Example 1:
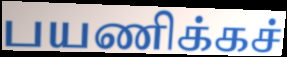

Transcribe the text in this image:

பயணிக்கச்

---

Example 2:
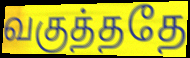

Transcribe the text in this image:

வகுத்ததே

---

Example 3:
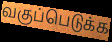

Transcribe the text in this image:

வகுப்பெடுக்க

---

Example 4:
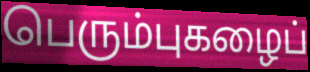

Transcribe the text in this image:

பெரும்புகழைப்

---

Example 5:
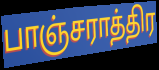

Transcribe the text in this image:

பாஞ்சராத்திர